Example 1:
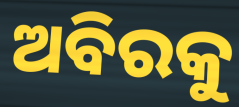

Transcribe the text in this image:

ଅବିରକୁ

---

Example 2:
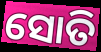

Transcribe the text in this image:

ସୋତି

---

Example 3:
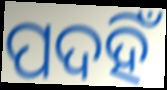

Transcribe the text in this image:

ପଦହିଁ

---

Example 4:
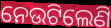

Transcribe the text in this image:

ନେଉଟିଲେଣି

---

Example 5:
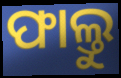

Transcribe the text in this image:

ଫାଲ୍ତୁ